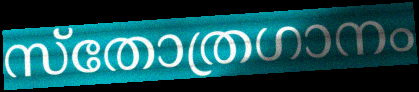
സ്തോത്രഗാനം